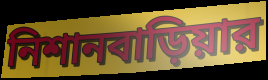
নিশানবাড়িয়ার